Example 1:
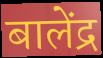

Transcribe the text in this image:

बालेंद्र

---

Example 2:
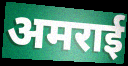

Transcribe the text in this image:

अमराई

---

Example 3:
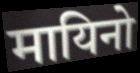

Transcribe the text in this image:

मायिनो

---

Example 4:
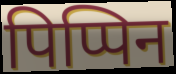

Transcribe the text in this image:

पिप्पिन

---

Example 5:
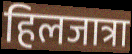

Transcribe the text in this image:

हिलजात्रा